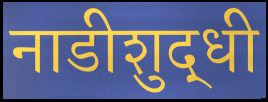
नाडीशुद्धी